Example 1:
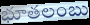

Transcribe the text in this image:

భూతలంబు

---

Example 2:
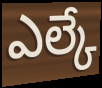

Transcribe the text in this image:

ఎల్కే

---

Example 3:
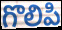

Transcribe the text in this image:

గొలిపి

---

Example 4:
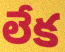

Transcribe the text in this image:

లేక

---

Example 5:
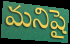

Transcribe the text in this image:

మనిషై